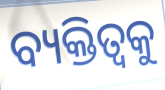
ବ୍ୟକ୍ତିତ୍ୱକୁ